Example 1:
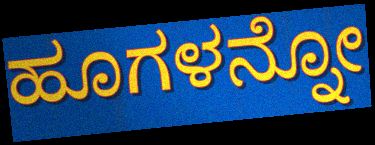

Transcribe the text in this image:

ಹೂಗಳನ್ನೋ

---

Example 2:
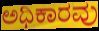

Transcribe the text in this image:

ಅಧಿಕಾರವು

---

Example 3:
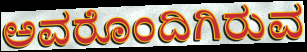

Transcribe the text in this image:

ಅವರೊಂದಿಗಿರುವ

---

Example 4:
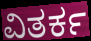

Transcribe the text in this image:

ವಿತರ್ಕ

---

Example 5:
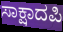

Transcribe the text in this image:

ಸಾಕ್ಷಾದಪಿ